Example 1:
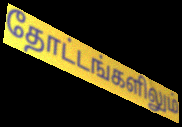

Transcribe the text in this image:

தோட்டங்களிலும்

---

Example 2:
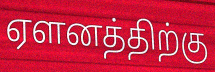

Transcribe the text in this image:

ஏளனத்திற்கு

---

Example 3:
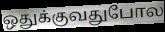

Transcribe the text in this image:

ஒதுக்குவதுபோல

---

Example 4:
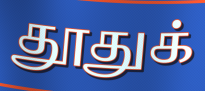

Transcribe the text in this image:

தூதுக்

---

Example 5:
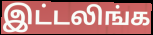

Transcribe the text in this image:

இட்டலிங்க